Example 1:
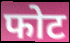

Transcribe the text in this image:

फोट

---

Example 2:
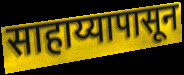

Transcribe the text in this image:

साहाय्यापासून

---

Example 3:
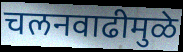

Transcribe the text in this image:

चलनवाढीमुळे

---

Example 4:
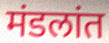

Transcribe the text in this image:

मंडलांत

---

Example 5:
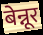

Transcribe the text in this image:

बेन्नूर